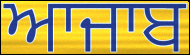
ਆਜਾਬ